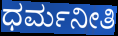
ಧರ್ಮನೀತಿ